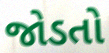
જોડતો